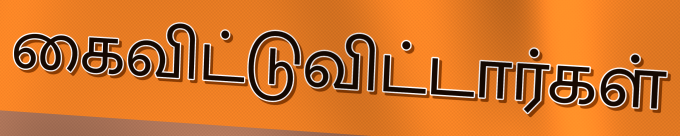
கைவிட்டுவிட்டார்கள்